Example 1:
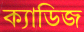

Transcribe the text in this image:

ক্যাডিজ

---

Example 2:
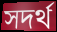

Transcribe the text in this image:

সদর্থ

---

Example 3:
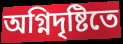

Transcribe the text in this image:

অগ্নিদৃষ্টিতে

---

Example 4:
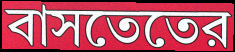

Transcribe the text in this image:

বাসতেতের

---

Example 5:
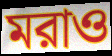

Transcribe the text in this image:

মরাও